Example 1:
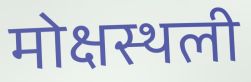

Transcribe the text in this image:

मोक्षस्थली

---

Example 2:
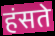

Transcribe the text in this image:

हंसते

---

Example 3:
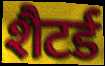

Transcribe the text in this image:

शैटर्ड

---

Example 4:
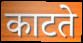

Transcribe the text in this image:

काटते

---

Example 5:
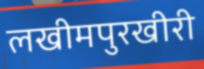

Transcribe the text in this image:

लखीमपुरखीरी